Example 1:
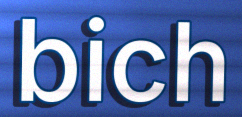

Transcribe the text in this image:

bich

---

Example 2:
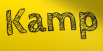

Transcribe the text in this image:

Kamp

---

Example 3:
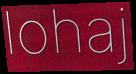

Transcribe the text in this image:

lohaj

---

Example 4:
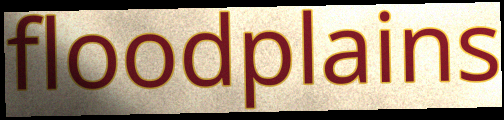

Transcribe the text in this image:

floodplains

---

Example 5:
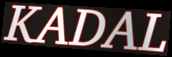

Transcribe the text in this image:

KADAL